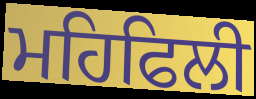
ਮਹਿਫਿਲੀ